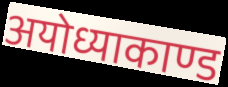
अयोध्याकाण्ड